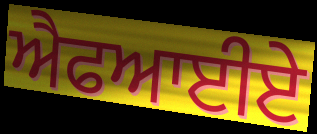
ਐਫਆਈਏ